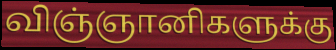
விஞ்ஞானிகளுக்கு